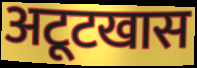
अटूटखास